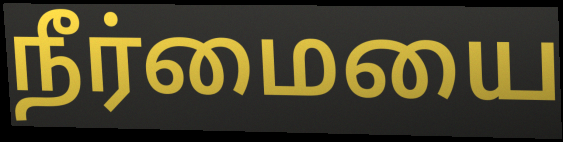
நீர்மையை